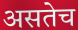
असतेच